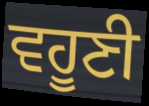
ਵਹੂਣੀ